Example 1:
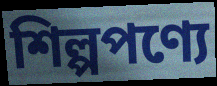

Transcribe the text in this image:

শিল্পপণ্যে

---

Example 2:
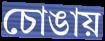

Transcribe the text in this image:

চোঙায়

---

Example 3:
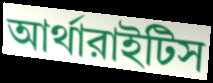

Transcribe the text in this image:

আর্থারাইটিস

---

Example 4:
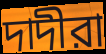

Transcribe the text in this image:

দাদীরা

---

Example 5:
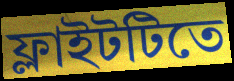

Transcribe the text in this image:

ফ্লাইটটিতে